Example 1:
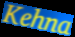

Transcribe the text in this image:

Kehna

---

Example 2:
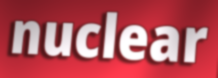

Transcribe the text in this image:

nuclear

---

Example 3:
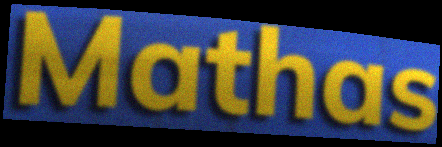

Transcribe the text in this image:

Mathas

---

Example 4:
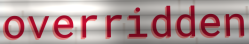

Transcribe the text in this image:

overridden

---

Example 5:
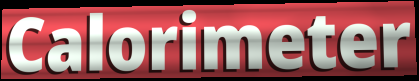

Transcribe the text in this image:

Calorimeter